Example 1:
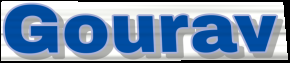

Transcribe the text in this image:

Gourav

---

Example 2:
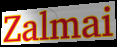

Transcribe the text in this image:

Zalmai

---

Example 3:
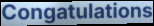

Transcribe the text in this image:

Congatulations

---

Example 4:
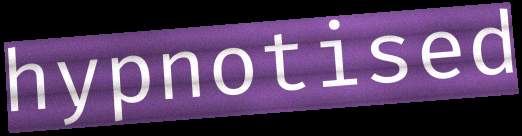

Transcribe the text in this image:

hypnotised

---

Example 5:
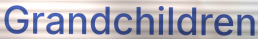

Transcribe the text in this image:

Grandchildren